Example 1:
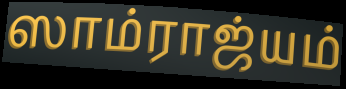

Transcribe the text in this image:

ஸாம்ராஜ்யம்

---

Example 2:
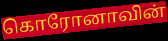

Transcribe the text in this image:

கொரோனாவின்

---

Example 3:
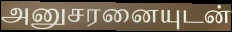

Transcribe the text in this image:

அனுசரனையுடன்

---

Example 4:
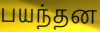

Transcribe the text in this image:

பயந்தன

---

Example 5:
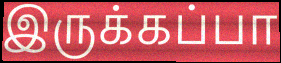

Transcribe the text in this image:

இருக்கப்பா